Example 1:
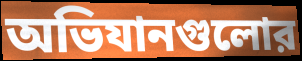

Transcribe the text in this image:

অভিযানগুলোর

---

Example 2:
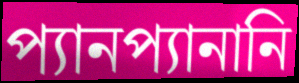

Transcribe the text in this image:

প্যানপ্যানানি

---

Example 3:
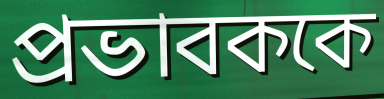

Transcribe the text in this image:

প্রভাবককে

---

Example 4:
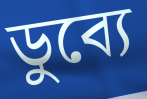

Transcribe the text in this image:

ডুব্যে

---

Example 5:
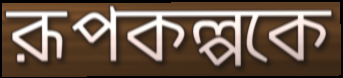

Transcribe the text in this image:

রূপকল্পকে